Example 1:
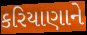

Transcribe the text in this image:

કરિયાણાને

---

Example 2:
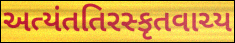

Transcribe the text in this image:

અત્યંતતિરસ્કૃતવાચ્ય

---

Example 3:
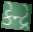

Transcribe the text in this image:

કેન્દ્રે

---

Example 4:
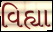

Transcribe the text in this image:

વિહ્યા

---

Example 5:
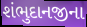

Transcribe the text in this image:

શંભુદાનજીના